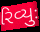
રિવ્યુઃ